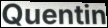
Quentin